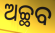
ଅଚ୍ଛବ